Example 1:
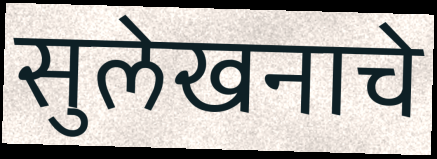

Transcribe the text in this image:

सुलेखनाचे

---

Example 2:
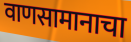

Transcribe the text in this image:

वाणसामानाचा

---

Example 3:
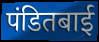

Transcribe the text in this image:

पंडितबाई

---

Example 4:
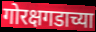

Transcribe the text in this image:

गोरक्षगडाच्या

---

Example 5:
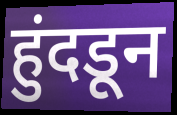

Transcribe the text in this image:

हुंदडून